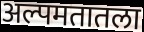
अल्पमतातला